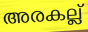
അരകല്ല്